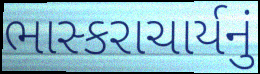
ભાસ્કરાચાર્યનું